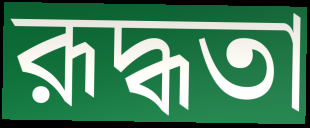
রূদ্ধতা